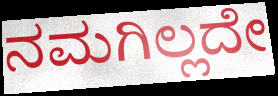
ನಮಗಿಲ್ಲದೇ